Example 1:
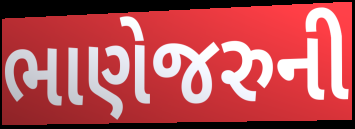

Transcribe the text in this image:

ભાણેજરુની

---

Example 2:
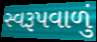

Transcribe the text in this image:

સ્વરૂપવાળું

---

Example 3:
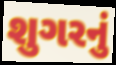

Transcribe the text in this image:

શુગરનું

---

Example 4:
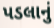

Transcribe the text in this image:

પડલાનું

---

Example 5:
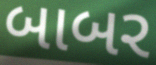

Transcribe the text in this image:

બાબર